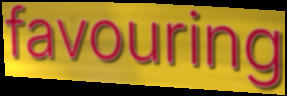
favouring